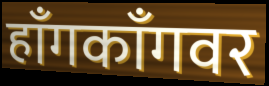
हाँगकाँगवर